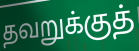
தவறுக்குத்